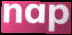
nap